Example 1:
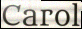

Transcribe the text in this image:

Carol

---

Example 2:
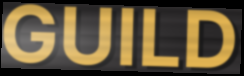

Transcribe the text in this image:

GUILD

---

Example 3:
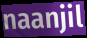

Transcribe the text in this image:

naanjil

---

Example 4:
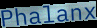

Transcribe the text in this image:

Phalanx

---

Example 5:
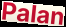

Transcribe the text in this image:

Palan